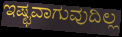
ಇಷ್ಟವಾಗುವುದಿಲ್ಲ